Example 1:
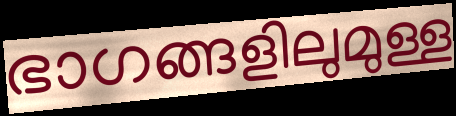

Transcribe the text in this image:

ഭാഗങ്ങളിലുമുള്ള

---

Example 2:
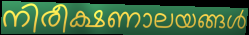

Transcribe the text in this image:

നിരീക്ഷണാലയങ്ങൾ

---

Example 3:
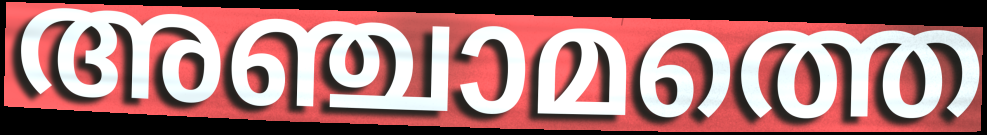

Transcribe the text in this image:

അഞ്ചാമത്തെ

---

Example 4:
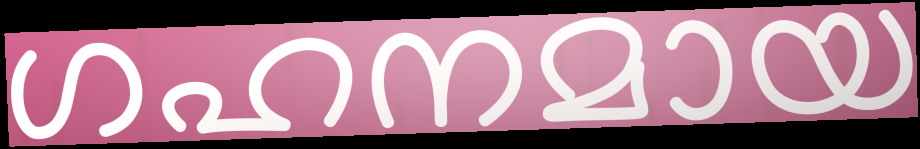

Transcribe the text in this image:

ഗഹനമായ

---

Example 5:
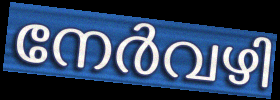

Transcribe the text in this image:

നേർവഴി